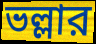
ভল্লার